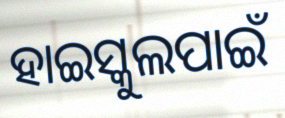
ହାଇସ୍କୁଲପାଇଁ